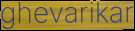
ghevarikar